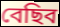
বেছিব